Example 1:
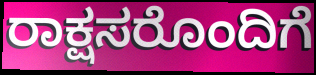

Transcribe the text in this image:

ರಾಕ್ಷಸರೊಂದಿಗೆ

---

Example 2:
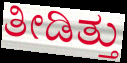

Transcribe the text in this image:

ತೀಡಿತ್ತು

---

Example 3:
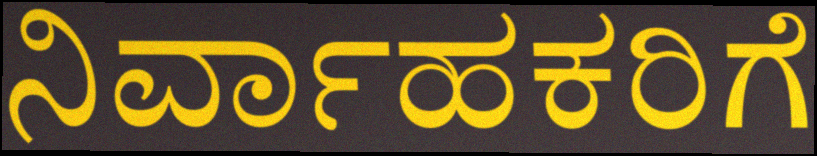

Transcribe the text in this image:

ನಿರ್ವಾಹಕರಿಗೆ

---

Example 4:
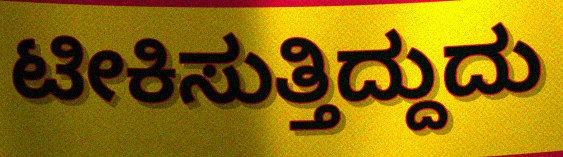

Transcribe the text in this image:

ಟೀಕಿಸುತ್ತಿದ್ದುದು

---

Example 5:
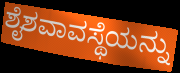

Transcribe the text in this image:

ಶೈಶವಾವಸ್ಥೆಯನ್ನು